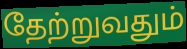
தேற்றுவதும்